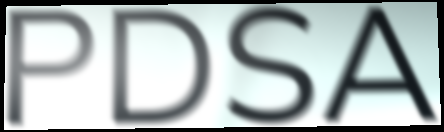
PDSA